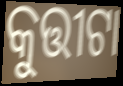
କୁତ୍ତୀଟା